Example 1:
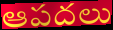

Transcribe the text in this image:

ఆపదలు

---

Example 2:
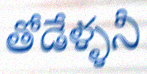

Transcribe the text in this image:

తోడేళ్ళనీ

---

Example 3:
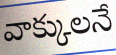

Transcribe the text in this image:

వాక్కులనే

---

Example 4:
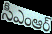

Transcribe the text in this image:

సీఎంఆర్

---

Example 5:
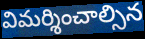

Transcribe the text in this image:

విమర్శించాల్సిన